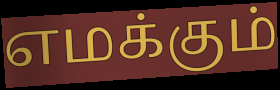
எமக்கும்